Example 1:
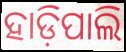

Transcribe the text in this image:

ହାଡ଼ିପାଲି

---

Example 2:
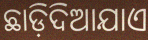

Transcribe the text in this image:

ଛାଡ଼ିଦିଆଯାଏ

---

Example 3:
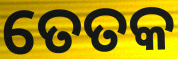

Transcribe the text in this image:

ତେତକ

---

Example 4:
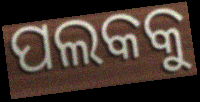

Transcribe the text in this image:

ପଲକକୁ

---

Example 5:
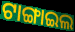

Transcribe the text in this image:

ଟାଙ୍ଗାଇଲ